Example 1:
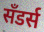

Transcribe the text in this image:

सॅंडर्स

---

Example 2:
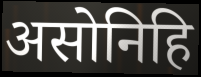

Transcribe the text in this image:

असोनिहि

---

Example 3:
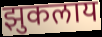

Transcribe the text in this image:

झुकलाय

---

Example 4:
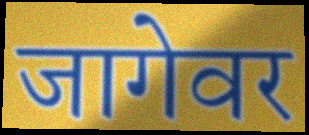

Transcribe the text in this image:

जागेवर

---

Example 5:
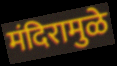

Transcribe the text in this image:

मंदिरामुळे